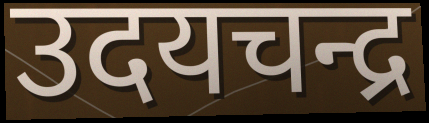
उदयचन्द्र